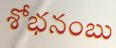
శోభనంబు